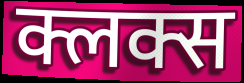
क्लक्स